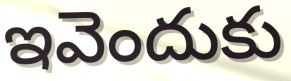
ఇవెందుకు